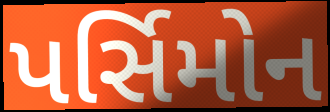
પર્સિમોન